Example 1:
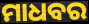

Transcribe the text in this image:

ମାଧବର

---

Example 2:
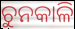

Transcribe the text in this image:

ଚୁନକାଳି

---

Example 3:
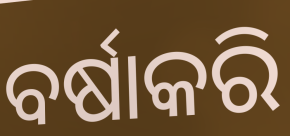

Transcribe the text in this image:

ବର୍ଷାକରି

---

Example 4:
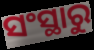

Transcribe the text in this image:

ସଂସ୍ଥାରୁ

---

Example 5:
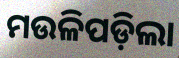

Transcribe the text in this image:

ମଉଳିପଡ଼ିଲା